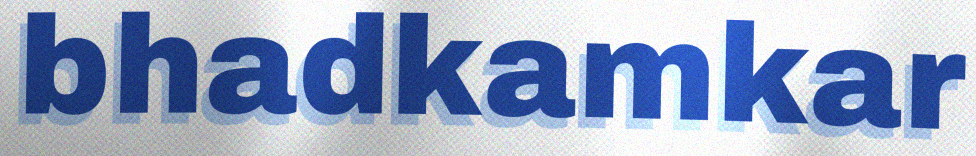
bhadkamkar